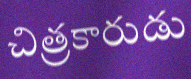
చిత్రకారుడు